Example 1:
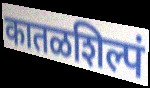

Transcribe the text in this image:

कातळशिल्पं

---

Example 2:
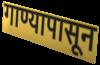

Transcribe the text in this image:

गाण्यापासून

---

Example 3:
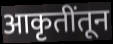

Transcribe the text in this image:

आकृतींतून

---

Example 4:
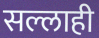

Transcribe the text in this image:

सल्लाही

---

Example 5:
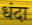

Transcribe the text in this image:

धंदा